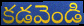
కడవెండి